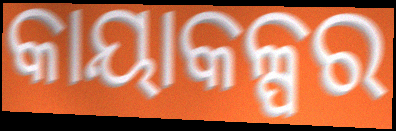
କାୟାକଳ୍ପର